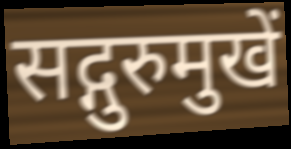
सद्गुरुमुखें